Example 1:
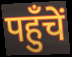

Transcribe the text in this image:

पहुँचें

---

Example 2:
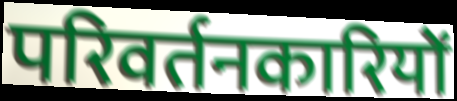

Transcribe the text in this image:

परिवर्तनकारियों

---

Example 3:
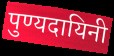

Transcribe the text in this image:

पुण्यदायिनी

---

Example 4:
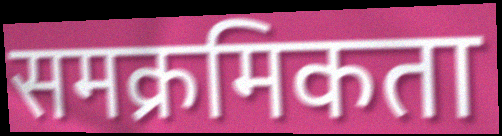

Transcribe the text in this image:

समक्रमिकता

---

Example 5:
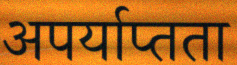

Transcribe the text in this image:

अपर्याप्तता